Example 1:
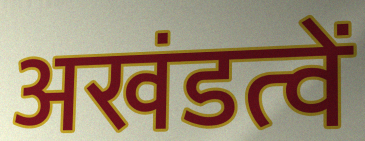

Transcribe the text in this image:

अखंडत्वें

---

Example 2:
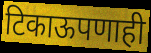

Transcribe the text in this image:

टिकाऊपणाही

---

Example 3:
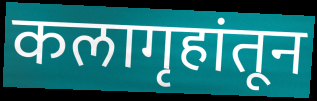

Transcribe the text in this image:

कलागृहांतून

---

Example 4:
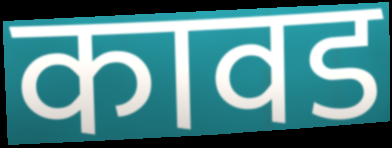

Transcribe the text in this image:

कावड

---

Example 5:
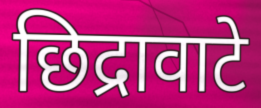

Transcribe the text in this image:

छिद्रावाटे